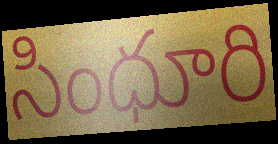
సింధూరి